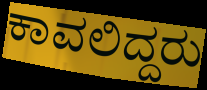
ಕಾವಲಿದ್ದರು